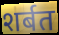
शर्बत